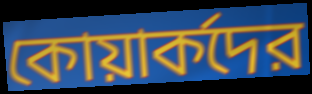
কোয়ার্কদের